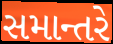
સમાન્તરે